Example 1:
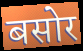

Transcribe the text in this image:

बसोर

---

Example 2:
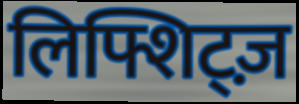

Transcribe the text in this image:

लिफ्शिट्ज़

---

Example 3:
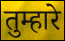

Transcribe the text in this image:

तुम्हारे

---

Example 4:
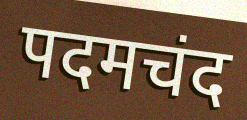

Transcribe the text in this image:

पदमचंद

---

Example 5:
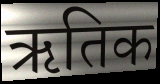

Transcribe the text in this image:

ऋतिक